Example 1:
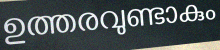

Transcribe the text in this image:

ഉത്തരവുണ്ടാകും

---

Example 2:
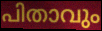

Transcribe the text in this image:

പിതാവും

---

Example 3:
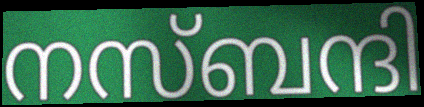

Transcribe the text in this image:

നസ്ബന്ദി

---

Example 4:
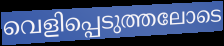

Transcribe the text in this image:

വെളിപ്പെടുത്തലോടെ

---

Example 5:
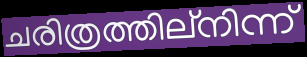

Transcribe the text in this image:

ചരിത്രത്തില്നിന്ന്